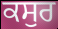
ਕਸੁਰ